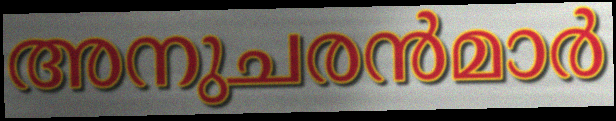
അനുചരൻമാർ